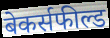
बेकर्सफील्ड